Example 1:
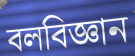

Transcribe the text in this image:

বলবিজ্ঞান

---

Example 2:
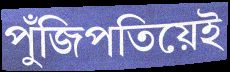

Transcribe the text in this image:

পুঁজিপতিয়েই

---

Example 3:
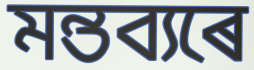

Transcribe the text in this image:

মন্তব্যৰে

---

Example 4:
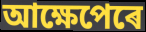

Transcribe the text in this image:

আক্ষেপেৰে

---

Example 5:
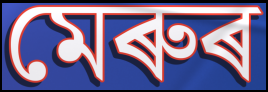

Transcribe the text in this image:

মেৰুৰ